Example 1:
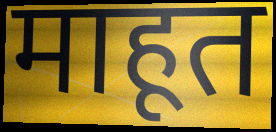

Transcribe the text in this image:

माहूत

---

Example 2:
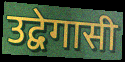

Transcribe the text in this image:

उद्वेगासी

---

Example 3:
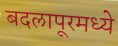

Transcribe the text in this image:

बदलापूरमध्ये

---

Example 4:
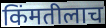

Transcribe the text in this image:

किंमतीलाच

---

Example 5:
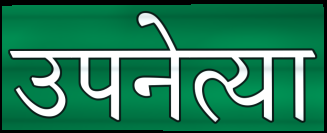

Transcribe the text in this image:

उपनेत्या